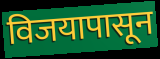
विजयापासून